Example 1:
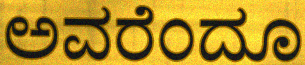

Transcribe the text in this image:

ಅವರೆಂದೂ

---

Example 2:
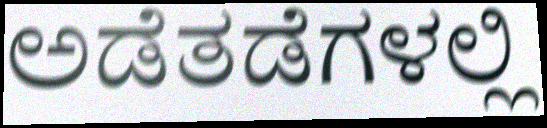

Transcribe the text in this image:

ಅಡೆತಡೆಗಳಲ್ಲಿ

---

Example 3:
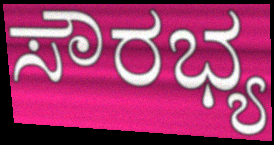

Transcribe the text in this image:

ಸೌರಭ್ಯ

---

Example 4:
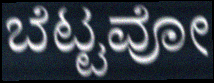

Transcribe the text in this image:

ಬೆಟ್ಟವೋ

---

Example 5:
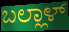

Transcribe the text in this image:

ಬಲ್ಲಾಳ್